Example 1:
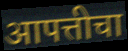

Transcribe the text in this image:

आपत्तीचा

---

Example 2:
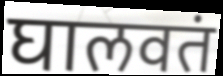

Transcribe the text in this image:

घालवतं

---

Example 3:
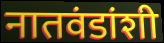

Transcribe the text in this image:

नातवंडांशी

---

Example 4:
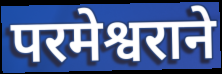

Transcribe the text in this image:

परमेश्वराने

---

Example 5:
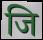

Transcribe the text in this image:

जि